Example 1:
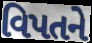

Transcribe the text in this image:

વિપતને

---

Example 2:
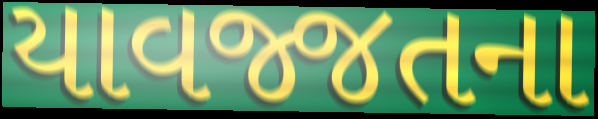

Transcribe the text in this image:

યાવજ્જતના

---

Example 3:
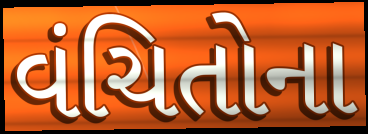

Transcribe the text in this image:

વંચિતોના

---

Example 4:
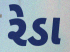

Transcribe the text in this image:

રેડા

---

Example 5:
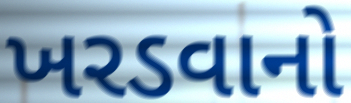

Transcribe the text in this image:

ખરડવાનો